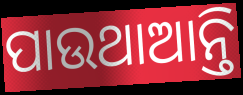
ପାଉଥାଆନ୍ତି